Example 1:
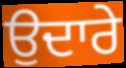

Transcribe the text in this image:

ਉਦਾਰੇ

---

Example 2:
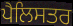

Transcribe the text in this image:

ਪੈਲਿਸਤਰ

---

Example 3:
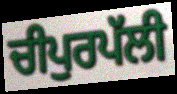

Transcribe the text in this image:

ਚੀਪੁਰਪੱਲੀ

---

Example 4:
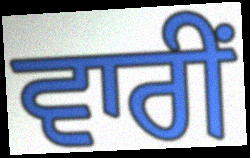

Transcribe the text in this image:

ਵਾਰੀਂ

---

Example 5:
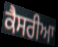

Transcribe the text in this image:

ਕੈਸਰੀਆ